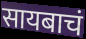
सायबाचं